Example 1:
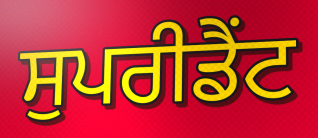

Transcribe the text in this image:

ਸੁਪਰੀਡੈਂਟ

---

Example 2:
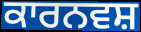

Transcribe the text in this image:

ਕਾਰਨਵਸ਼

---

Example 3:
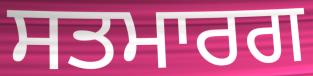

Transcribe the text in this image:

ਸਤਮਾਰਗ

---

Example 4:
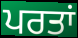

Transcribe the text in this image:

ਪਰਤਾਂ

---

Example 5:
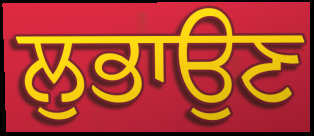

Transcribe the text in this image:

ਲੁਭਾਉਣ